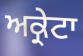
ਅਕ੍ਰੇਟਾ